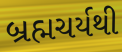
બ્રહ્મચર્યથી